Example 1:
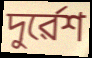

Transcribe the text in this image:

দুৰ্ৱেশ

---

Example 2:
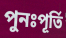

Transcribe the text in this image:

পুনঃপূৰ্তি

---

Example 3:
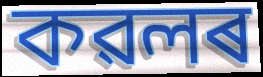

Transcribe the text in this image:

কৱলৰ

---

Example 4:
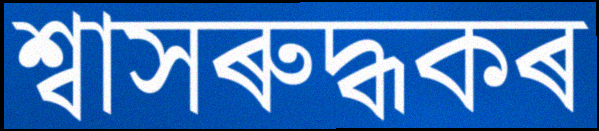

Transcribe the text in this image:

শ্বাসৰুদ্ধকৰ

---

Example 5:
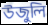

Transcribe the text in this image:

উজুলি